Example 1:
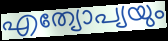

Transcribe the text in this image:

എത്യോപ്യയും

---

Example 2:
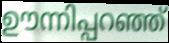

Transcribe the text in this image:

ഊന്നിപ്പറഞ്ഞ്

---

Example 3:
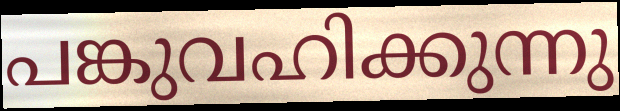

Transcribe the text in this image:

പങ്കുവഹിക്കുന്നു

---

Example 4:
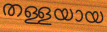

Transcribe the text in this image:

തള്ളയായ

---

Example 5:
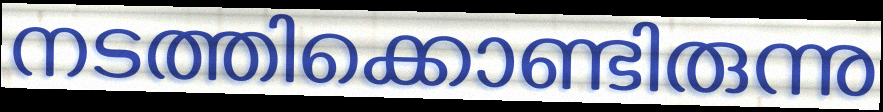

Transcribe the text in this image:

നടത്തിക്കൊണ്ടിരുന്നു